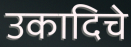
उकादिचे